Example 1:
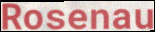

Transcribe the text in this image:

Rosenau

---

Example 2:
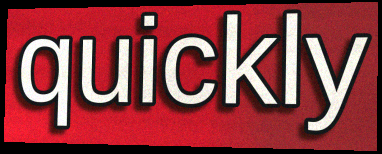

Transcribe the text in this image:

quickly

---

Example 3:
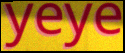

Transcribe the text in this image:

yeye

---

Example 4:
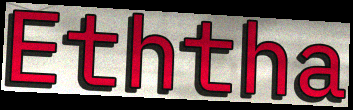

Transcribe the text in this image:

Eththa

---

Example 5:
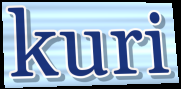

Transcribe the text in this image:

kuri